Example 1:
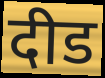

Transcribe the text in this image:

दीड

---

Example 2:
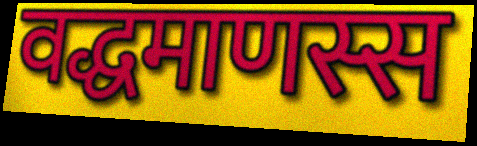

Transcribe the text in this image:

वद्धमाणस्स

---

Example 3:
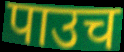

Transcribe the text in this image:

पाउच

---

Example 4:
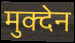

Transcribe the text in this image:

मुक्देन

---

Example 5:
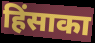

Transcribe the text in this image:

हिंसाका